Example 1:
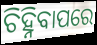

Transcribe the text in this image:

ଚିହ୍ନିବାପରେ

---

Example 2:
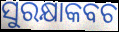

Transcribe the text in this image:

ସୁରକ୍ଷାକବଚ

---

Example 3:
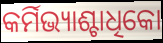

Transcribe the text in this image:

କର୍ମିଭ୍ୟାଶ୍ଚାଧିକୋ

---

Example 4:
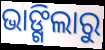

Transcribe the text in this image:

ଭାଙ୍ଗିଲାରୁ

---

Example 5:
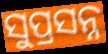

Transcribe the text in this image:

ସୁପ୍ରସନ୍ନ